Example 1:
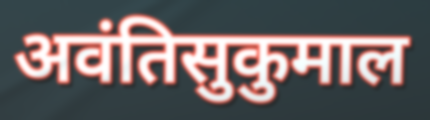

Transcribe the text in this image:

अवंतिसुकुमाल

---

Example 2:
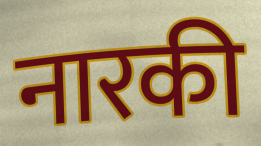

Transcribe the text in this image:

नारकी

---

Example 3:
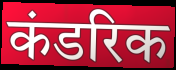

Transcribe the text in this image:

कंडरिक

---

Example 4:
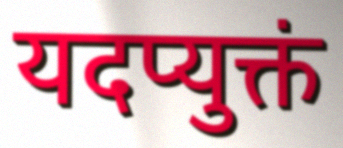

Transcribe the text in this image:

यदप्युक्तं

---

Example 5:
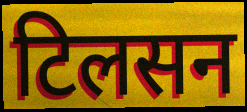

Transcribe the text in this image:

टिलसन